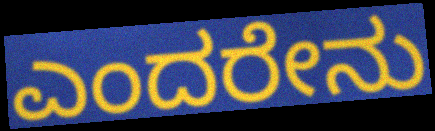
ಎಂದರೇನು